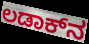
ಲಡಾಕ್‌ನ